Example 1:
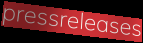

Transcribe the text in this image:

pressreleases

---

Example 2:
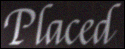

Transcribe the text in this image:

Placed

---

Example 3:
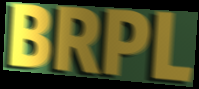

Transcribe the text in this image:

BRPL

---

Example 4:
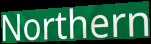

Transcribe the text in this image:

Northern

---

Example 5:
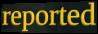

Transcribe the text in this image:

reported